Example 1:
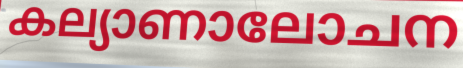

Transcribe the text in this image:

കല്യാണാലോചന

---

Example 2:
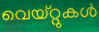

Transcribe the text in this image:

വെയ്റ്റുകൾ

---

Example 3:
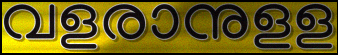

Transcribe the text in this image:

വളരാനുളള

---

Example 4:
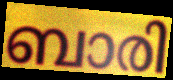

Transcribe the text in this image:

ബാരി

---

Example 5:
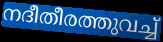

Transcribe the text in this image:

നദീതീരത്തുവച്ച്